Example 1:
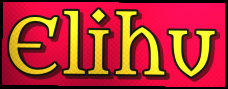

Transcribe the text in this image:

Elihu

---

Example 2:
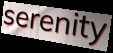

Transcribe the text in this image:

serenity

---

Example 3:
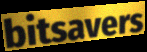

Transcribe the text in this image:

bitsavers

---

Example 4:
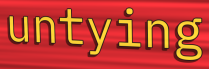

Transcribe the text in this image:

untying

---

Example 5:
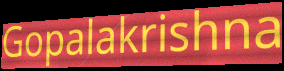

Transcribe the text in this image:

Gopalakrishna